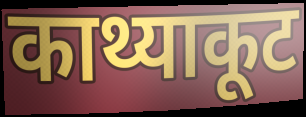
काथ्याकूट